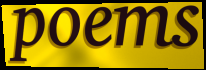
poems